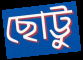
ছোট্টু